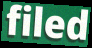
filed